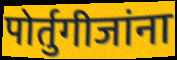
पोर्तुगीजांना